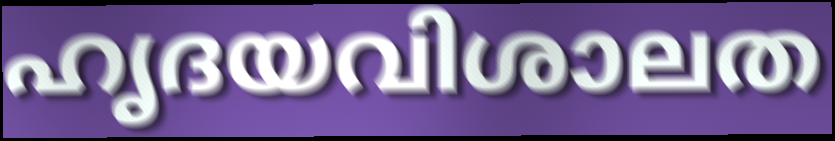
ഹൃദയവിശാലത